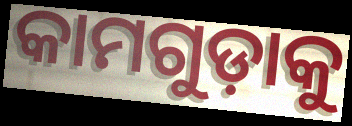
କାମଗୁଡ଼ାକୁ